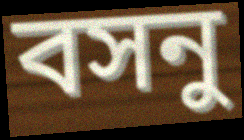
বসনু